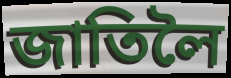
জাতিলৈ